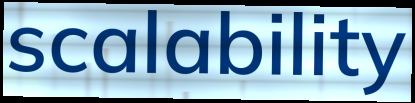
scalability